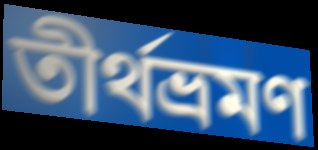
তীৰ্থভ্ৰমণ